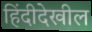
हिंदीदेखील